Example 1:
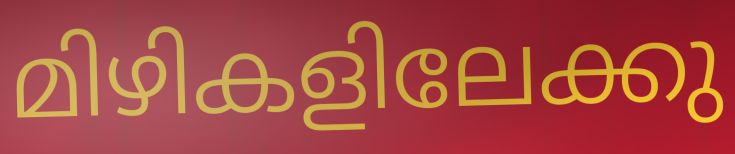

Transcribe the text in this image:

മിഴികളിലേക്കു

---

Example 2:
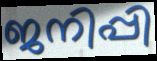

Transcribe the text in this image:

ജനിപ്പി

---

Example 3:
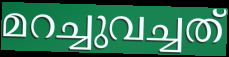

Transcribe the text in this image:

മറച്ചുവച്ചത്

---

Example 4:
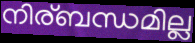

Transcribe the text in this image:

നിര്ബന്ധമില്ല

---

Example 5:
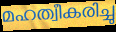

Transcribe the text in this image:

മഹത്വീകരിച്ചു